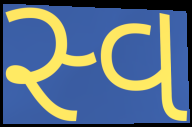
સ્વ